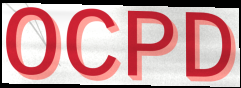
OCPD